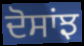
ਦੋਸਾਂਝ